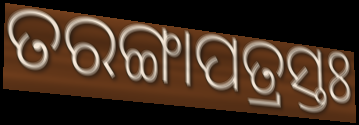
ତରଙ୍ଗାପତ୍ରସ୍ତଃ